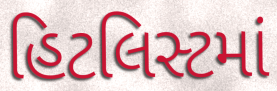
હિટલિસ્ટમાં